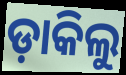
ଡ଼ାକିଲୁ